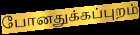
போனதுக்கப்புறம்